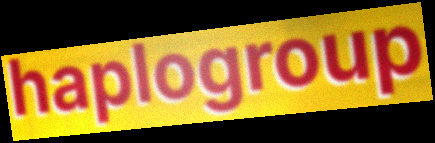
haplogroup